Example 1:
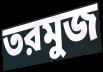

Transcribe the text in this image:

তরমুজ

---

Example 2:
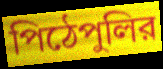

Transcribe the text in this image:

পিঠেপুলির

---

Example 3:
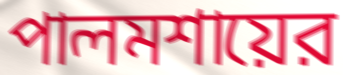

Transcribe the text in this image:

পালমশায়ের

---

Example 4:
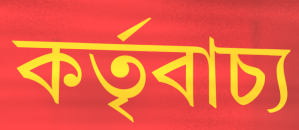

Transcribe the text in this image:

কর্তৃবাচ্য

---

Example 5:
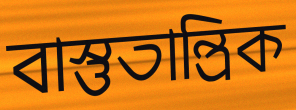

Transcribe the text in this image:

বাস্তুতান্ত্রিক